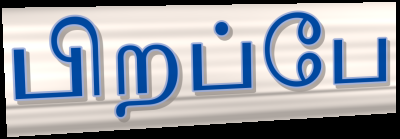
பிறப்பே